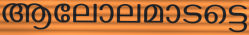
ആലോലമാടട്ടെ